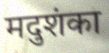
मदुशंका